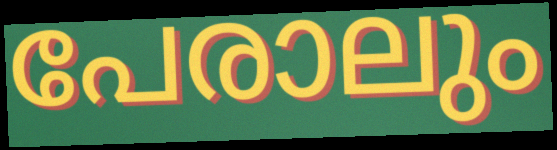
പേരാലും